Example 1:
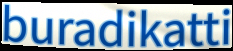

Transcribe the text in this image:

buradikatti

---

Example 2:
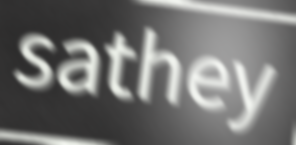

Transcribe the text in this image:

sathey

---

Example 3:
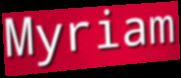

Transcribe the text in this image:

Myriam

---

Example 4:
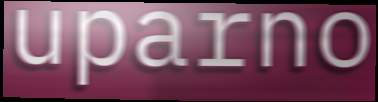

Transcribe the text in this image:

uparno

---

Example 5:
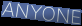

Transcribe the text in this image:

ANYONE